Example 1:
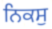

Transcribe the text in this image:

ਨਿਕਸੁ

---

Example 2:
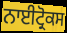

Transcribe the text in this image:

ਨਾਈਟ੍ਰੋਕਸ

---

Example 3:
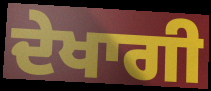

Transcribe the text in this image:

ਦੇਖਾਗੀ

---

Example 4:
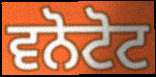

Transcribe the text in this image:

ਵਨੋਟੋਟ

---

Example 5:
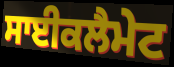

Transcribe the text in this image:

ਸਾਈਕਲੈਮੇਟ